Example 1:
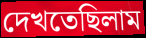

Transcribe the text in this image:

দেখতেছিলাম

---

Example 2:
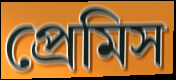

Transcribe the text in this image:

প্রেমিস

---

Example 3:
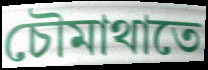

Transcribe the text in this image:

চৌমাথাতে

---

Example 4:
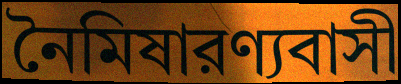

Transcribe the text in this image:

নৈমিষারণ্যবাসী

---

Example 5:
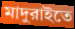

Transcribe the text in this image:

মাদুরাইতে